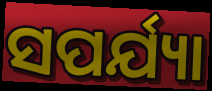
ସପର୍ଯ୍ୟା